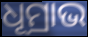
ଧୂମ୍ରାଭ